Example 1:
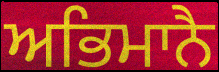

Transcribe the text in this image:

ਅਭਿਮਾਨੈ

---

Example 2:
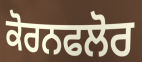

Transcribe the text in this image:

ਕੋਰਨਫਲੋਰ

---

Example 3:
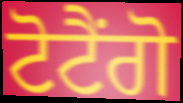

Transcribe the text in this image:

ਟੋਟੈਂਗੋ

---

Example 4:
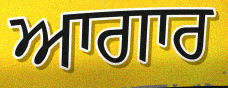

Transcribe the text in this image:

ਆਗਾਰ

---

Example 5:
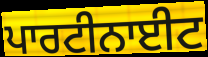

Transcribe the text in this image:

ਪਾਰਟੀਨਾਈਟ